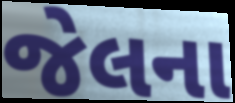
જેલના